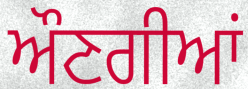
ਔਣਗੀਆਂ